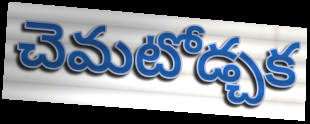
చెమటోడ్చక